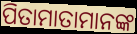
ପିତାମାତାମାନଙ୍କ